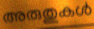
അരുതുകൾ